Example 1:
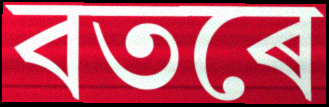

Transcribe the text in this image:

বতৰে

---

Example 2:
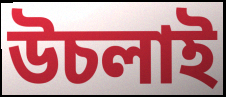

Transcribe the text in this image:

উচলাই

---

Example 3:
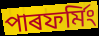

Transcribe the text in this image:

পাৰফৰ্মিং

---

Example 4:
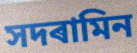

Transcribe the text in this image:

সদৰামিন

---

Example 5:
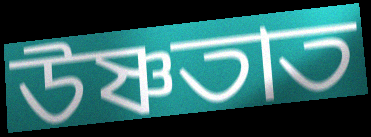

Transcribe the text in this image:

উষ্ণতাত